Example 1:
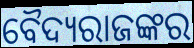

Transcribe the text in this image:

ବୈଦ୍ୟରାଜଙ୍କର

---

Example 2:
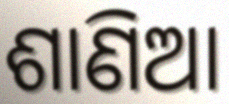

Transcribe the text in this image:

ଶାଣିଆ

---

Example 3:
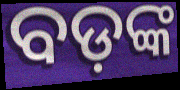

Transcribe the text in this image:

ବଡ଼ଙ୍କ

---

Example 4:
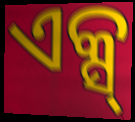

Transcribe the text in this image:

ଏକ୍ସ୍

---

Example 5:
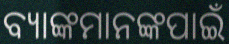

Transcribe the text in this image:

ବ୍ୟାଙ୍କମାନଙ୍କପାଇଁ